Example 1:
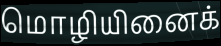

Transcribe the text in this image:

மொழியினைக்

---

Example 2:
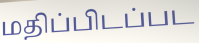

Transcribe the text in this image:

மதிப்பிடப்பட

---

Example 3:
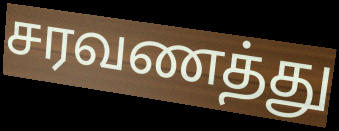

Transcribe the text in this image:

சரவணத்து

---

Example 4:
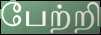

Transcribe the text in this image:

பேற்றி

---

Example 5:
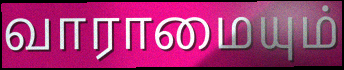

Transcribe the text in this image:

வாராமையும்